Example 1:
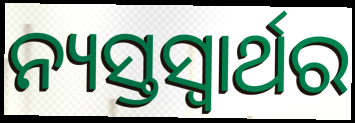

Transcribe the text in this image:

ନ୍ୟସ୍ତସ୍ୱାର୍ଥର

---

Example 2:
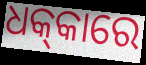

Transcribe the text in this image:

ଧକ୍‌କାରେ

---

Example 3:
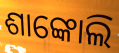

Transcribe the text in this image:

ଶାଙ୍କୋଲି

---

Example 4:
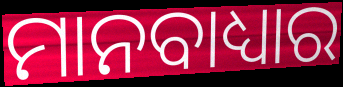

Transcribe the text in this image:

ମାନବାଧ୍ୟାର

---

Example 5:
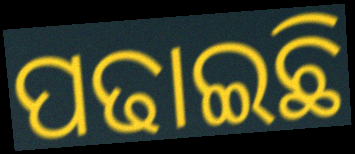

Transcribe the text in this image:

ପଢାଇଛି